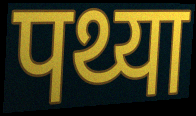
पथ्या